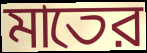
মাতের